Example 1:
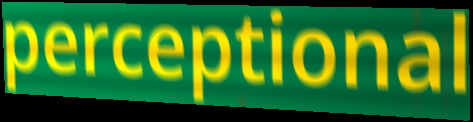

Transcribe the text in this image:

perceptional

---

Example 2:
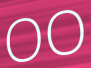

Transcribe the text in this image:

OO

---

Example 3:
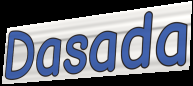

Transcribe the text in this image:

Dasada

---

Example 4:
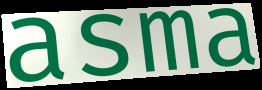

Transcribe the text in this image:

asma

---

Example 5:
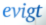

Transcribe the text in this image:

evigt